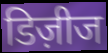
डिज़ीज